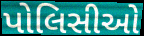
પોલિસીઓ